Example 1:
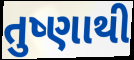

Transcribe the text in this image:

તુષ્ણાથી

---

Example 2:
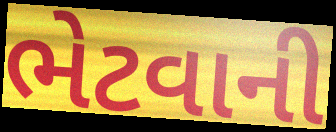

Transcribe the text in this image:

ભેટવાની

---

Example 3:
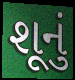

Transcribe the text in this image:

શૂનું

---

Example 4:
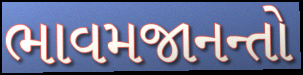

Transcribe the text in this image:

ભાવમજાનન્તો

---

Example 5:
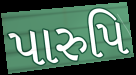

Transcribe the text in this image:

પારુપિ